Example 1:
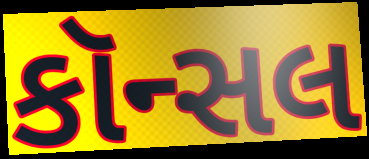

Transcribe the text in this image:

કૉન્સલ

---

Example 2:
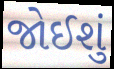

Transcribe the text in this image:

જોઈશું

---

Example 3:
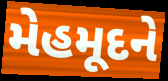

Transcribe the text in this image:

મેહમૂદને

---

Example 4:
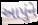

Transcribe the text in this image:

આપુંને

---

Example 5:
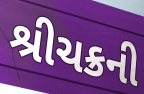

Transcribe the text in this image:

શ્રીચક્રની